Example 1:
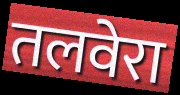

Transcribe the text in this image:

तलवेरा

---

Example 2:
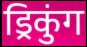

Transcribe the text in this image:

ड्रिकुंग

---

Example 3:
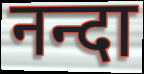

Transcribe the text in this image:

नन्दा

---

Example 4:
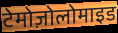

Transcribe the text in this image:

टेमोज़ोलोमाइड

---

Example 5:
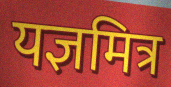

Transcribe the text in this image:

यज्ञमित्र